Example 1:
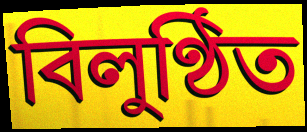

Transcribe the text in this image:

বিলুণ্ঠিত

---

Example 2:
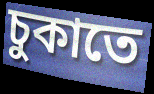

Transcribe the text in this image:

চুকাতে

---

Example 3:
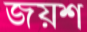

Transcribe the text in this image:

জয়শ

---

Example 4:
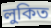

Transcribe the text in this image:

লুকিত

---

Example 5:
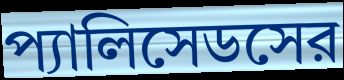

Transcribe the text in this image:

প্যালিসেডসের